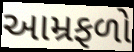
આમ્રફળો